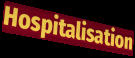
Hospitalisation